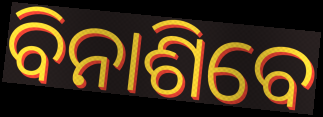
ବିନାଶିବେ